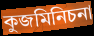
কুজমিনিচনা